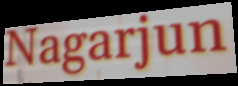
Nagarjun